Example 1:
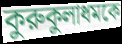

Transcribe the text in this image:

কুরুকুলাধমকে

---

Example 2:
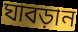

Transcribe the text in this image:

ঘাবড়ান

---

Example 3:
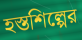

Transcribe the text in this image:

হস্তশিল্পের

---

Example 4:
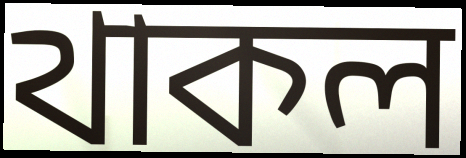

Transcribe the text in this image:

থাকল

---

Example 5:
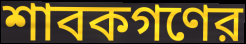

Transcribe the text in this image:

শাবকগণের